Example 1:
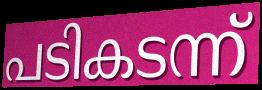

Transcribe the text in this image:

പടികടന്ന്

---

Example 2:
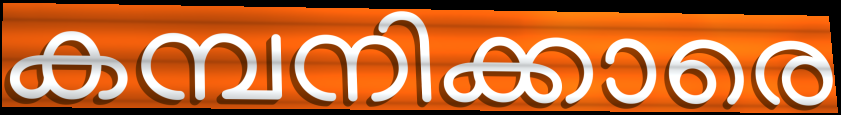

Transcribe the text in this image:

കമ്പനിക്കാരെ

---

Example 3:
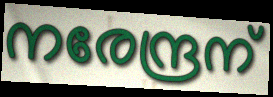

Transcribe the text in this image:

നരേന്ദ്രന്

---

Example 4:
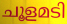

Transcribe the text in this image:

ചൂളമടി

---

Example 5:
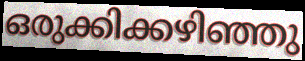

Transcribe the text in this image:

ഒരുക്കിക്കഴിഞ്ഞു